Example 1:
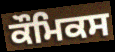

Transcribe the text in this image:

ਕੌਮਿਕਸ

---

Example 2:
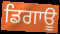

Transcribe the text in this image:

ਡਿਗਾਊ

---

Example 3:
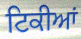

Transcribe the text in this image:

ਟਿਕੀਆਂ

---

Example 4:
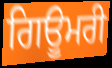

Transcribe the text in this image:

ਗਿਊਮਰੀ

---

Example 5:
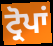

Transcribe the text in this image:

ਟ੍ਰੋਪਾਂ